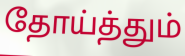
தோய்த்தும்